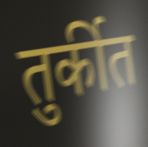
तुर्कीत